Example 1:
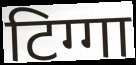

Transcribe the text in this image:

टिग्गा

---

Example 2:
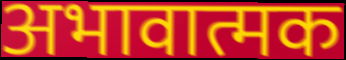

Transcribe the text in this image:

अभावात्मक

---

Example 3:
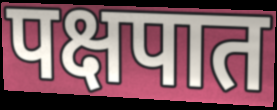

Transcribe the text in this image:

पक्षपात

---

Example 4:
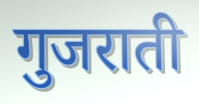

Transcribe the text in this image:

गुजराती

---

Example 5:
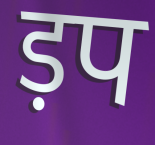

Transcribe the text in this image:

ड़प